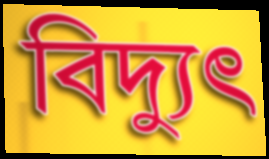
বিদ্যুৎ